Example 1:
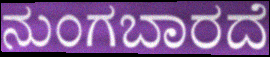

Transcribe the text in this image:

ನುಂಗಬಾರದೆ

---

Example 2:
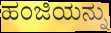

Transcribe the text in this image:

ಹಂಜಿಯನ್ನು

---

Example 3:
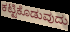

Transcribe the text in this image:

ಕಟ್ಟಿಕೊಡುವುದು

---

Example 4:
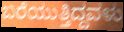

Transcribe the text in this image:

ಬರೆಯುತ್ತಿದ್ದವಳು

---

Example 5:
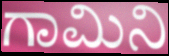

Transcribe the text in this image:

ಗಾಮಿನಿ